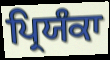
ਪ੍ਰਿਯੰਕਾ